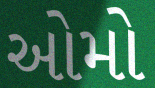
ઓમો